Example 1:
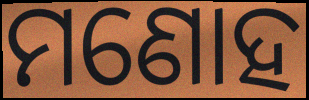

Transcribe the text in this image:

ମଣୋହ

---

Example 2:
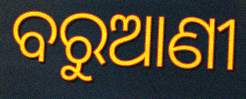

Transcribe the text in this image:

ବରୁଆଣୀ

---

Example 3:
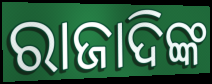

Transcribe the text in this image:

ରାଜାଦିଙ୍କ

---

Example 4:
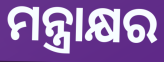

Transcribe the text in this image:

ମନ୍ତ୍ରାକ୍ଷର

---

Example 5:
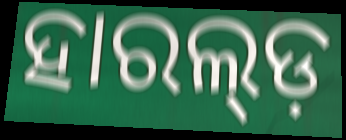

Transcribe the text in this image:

ହାରଲ୍ଡ଼